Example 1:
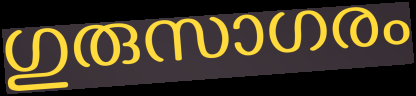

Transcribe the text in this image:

ഗുരുസാഗരം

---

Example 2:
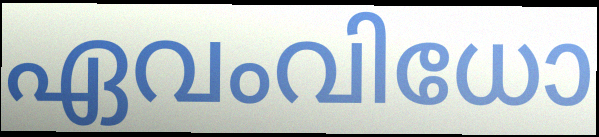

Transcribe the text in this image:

ഏവംവിധോ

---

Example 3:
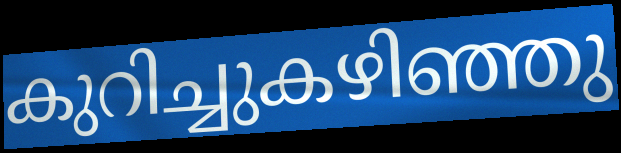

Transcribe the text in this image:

കുറിച്ചുകഴിഞ്ഞു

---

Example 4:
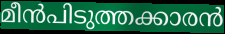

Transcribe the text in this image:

മീൻപിടുത്തക്കാരൻ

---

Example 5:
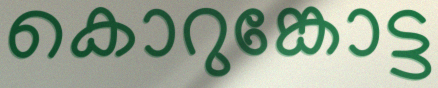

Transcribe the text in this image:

കൊറുങ്കോട്ട